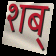
शब्